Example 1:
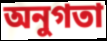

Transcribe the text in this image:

অনুগতা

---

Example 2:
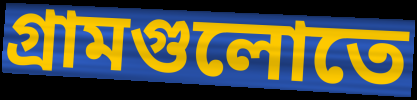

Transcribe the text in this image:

গ্রামগুলোতে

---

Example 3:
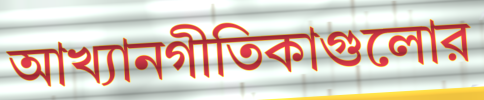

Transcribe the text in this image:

আখ্যানগীতিকাগুলোর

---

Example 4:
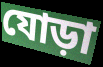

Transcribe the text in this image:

যোড়া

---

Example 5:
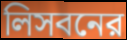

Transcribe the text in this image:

লিসবনের